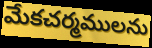
మేకచర్మములను